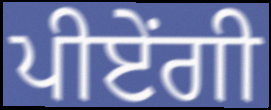
ਪੀਏਂਗੀ